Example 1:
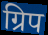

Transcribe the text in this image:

ग्रिप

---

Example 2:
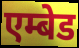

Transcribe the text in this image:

एम्बेड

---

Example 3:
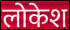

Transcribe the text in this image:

लोकेश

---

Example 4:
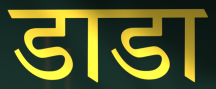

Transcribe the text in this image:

डाडा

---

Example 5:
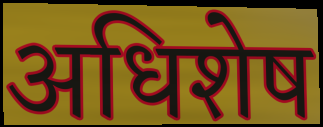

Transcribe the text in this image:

अधिशेष